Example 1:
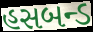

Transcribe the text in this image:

હસબન્ડ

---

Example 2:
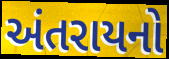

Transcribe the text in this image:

અંતરાયનો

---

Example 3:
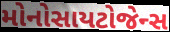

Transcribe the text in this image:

મોનોસાયટોજેન્સ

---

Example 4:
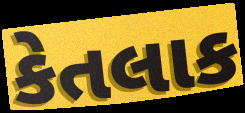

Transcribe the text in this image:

કેતલાક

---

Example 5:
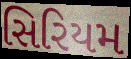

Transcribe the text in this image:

સિરિયમ